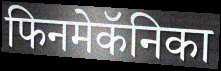
फिनमेकॅनिका